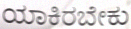
ಯಾಕಿರಬೇಕು